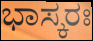
ಭಾಸ್ಕರಃ